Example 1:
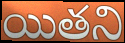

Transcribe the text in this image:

యితని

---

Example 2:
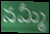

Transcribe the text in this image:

నమ్మీ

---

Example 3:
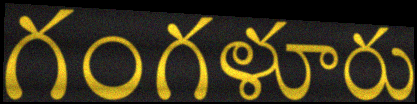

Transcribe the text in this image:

గంగళూరు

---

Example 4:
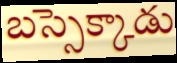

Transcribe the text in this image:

బస్సెక్కాడు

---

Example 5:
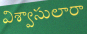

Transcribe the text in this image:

విశ్వాసులారా